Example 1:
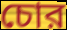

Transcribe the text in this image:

চোর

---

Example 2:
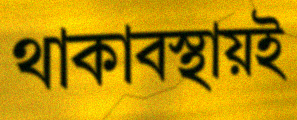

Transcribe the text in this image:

থাকাবস্থায়ই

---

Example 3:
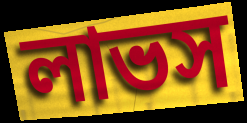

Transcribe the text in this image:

লাভস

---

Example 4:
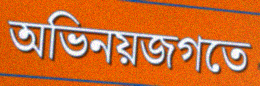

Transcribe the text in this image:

অভিনয়জগতে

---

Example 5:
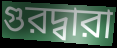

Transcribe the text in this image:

গুরদ্বারা